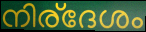
നിര്ദേശം